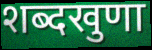
शब्दखुणा